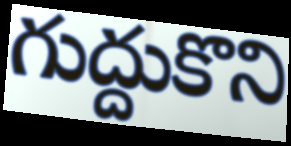
గుద్దుకొని